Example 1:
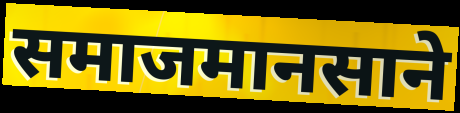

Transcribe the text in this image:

समाजमानसाने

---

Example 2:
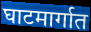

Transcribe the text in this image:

घाटमार्गात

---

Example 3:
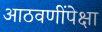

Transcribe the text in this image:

आठवणींपेक्षा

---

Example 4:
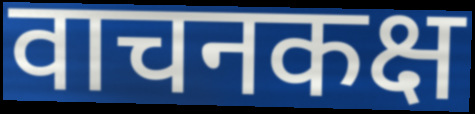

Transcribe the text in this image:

वाचनकक्ष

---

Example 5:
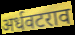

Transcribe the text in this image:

अर्धवटराव